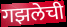
गझलेची